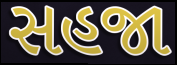
સહજા